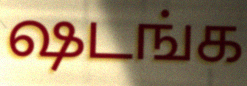
ஷடங்க